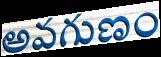
అవగుణం